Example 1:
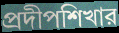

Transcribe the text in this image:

প্রদীপশিখার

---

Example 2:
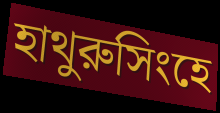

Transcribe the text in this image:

হাথুরুসিংহে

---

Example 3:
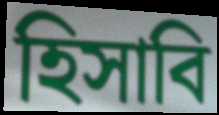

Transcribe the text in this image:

হিসাবি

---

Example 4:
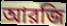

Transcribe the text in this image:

আরজি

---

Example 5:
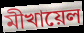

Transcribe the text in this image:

মীখায়েল